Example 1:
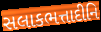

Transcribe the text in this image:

સલાકભત્તાદીનિ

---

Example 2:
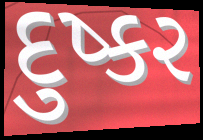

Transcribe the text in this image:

દુષ્કર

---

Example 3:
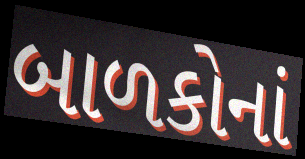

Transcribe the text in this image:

બાળકોનાં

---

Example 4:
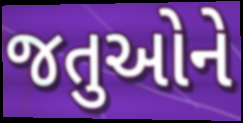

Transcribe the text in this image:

જતુઓને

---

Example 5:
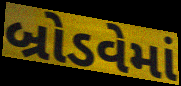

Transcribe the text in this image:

બ્રોડવેમાં